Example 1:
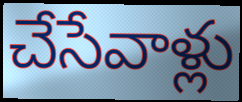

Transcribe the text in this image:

చేసేవాళ్లు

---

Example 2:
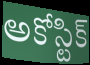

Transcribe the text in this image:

అకోస్టిక్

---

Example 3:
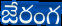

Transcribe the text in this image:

జేరంగ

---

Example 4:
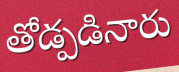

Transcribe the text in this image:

తోడ్పడినారు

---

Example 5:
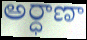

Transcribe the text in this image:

అర్ధాణా